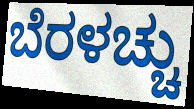
ಬೆರಳಚ್ಚು